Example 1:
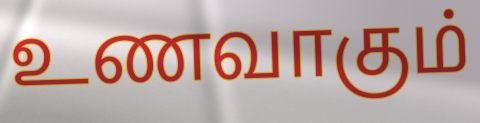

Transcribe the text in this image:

உணவாகும்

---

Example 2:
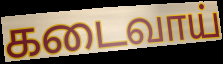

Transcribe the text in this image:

கடைவாய்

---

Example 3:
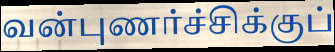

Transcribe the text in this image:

வன்புணர்ச்சிக்குப்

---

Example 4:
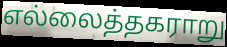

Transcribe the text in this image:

எல்லைத்தகராறு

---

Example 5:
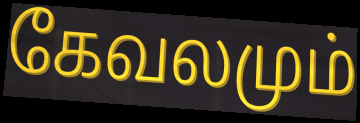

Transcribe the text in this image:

கேவலமும்